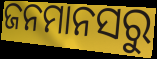
ଜନମାନସରୁ